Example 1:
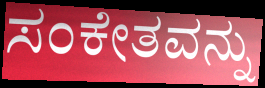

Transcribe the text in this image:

ಸಂಕೇತವನ್ನು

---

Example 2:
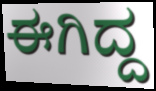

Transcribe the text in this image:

ಈಗಿದ್ದ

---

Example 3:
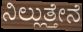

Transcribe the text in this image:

ನಿಲ್ಲುತ್ತೇನೆ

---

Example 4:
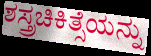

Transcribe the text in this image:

ಶಸ್ತ್ರಚಿಕಿತ್ಸೆಯನ್ನು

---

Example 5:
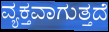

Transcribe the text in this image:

ವ್ಯಕ್ತವಾಗುತ್ತದೆ